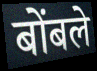
बोंबले